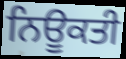
ਨਿਊਕਤੀ